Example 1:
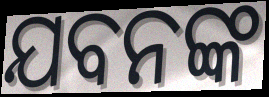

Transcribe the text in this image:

ଯବନଙ୍କ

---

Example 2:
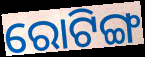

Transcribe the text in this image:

ରୋଟିଙ୍ଗ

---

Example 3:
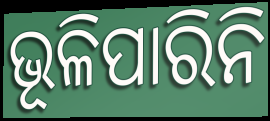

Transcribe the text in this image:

ଭୂଳିପାରିନି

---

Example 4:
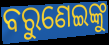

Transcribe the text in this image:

ବରୁଣେଇଙ୍କୁ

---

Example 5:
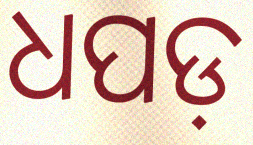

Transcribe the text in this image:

ଧପଡ଼